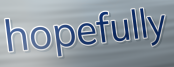
hopefully